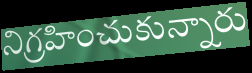
నిగ్రహించుకున్నారు